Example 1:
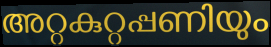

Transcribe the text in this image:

അറ്റകുറ്റപ്പണിയും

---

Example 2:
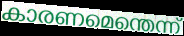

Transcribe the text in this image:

കാരണമെന്തെന്ന്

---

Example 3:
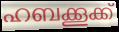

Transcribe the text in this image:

ഹബക്കൂക്ക്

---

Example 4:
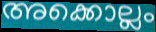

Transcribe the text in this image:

അക്കൊല്ലം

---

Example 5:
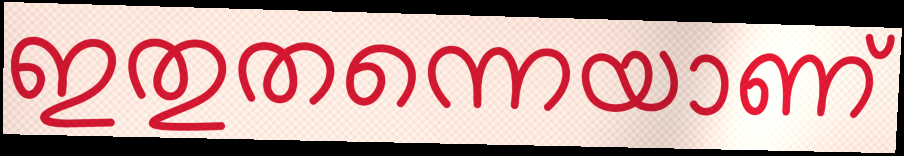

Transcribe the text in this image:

ഇതുതന്നെയാണ്